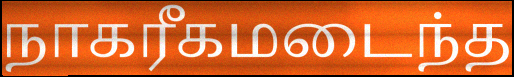
நாகரீகமடைந்த